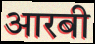
आरबी